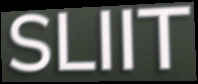
SLIIT